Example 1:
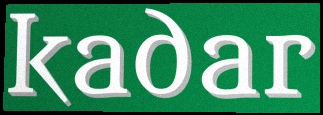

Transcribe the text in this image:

kadar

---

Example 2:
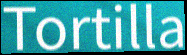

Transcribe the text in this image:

Tortilla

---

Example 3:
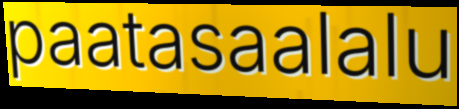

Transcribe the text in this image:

paatasaalalu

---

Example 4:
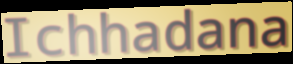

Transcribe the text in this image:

Ichhadana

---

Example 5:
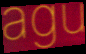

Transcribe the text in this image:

agu